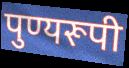
पुण्यरूपी